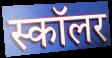
स्कॉलर